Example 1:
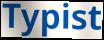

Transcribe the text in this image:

Typist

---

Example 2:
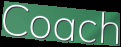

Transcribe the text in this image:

Coach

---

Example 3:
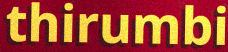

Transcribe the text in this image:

thirumbi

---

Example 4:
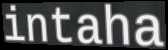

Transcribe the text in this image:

intaha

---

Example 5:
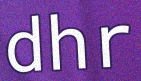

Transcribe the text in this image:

dhr